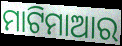
ମାଟିମାଆର